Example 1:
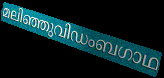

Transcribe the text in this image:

മലിഞ്ഞുവിഡംബഗാഥ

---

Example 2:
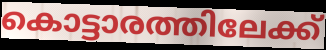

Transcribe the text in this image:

കൊട്ടാരത്തിലേക്ക്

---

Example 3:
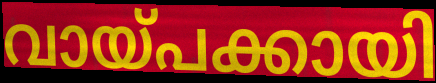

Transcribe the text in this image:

വായ്പക്കായി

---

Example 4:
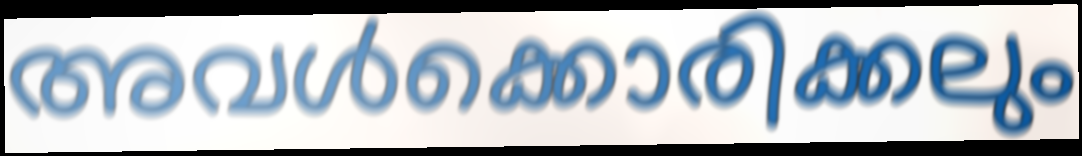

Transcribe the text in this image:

അവൾക്കൊരിക്കലും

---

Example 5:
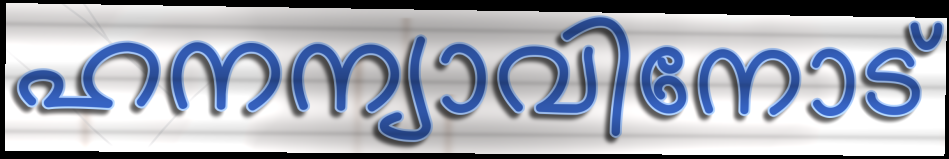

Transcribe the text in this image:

ഹനന്യാവിനോട്